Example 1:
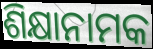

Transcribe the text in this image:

ଶିକ୍ଷାନାମକ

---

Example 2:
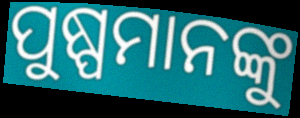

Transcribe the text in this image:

ପୁଷ୍ପମାନଙ୍କୁ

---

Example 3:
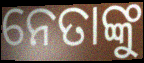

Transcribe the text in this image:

ନେତାଙ୍କୁ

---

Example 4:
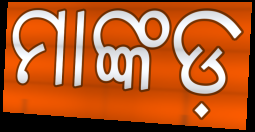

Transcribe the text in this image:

ମାଙ୍କଡ଼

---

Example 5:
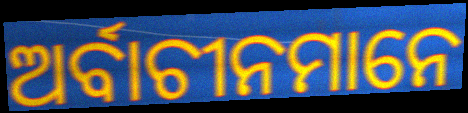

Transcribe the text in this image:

ଅର୍ବାଚୀନମାନେ